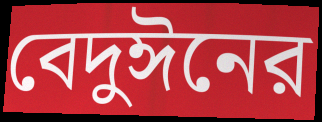
বেদুঈনের